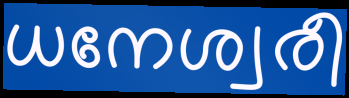
ധനേശ്വരീ